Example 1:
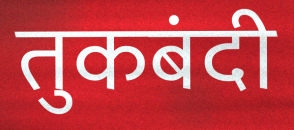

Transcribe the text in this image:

तुकबंदी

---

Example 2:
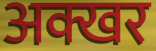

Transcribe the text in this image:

अक्खर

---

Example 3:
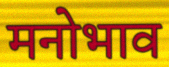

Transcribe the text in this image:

मनोभाव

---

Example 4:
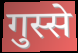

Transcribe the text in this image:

गुस्‍से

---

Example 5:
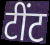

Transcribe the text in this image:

टींट